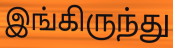
இங்கிருந்து